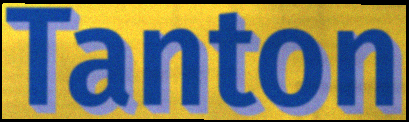
Tanton